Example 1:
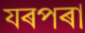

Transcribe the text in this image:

যৰপৰা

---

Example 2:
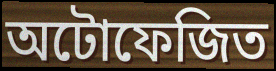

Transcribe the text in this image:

অটোফেজিত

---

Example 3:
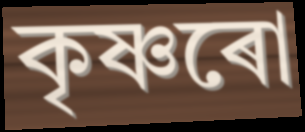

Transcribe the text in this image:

কৃষ্ণৰো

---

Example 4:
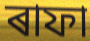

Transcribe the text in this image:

ৰাফা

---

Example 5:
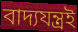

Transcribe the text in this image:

বাদ্যযন্ত্ৰই